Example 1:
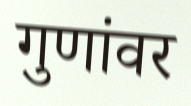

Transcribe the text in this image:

गुणांवर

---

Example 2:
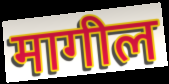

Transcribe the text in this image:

मागील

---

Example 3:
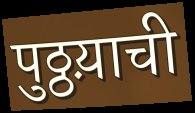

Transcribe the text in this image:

पुठ्ठय़ाची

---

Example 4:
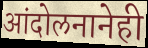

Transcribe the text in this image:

आंदोलनानेही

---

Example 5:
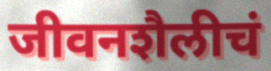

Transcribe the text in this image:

जीवनशैलीचं